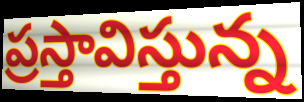
ప్రస్తావిస్తున్న